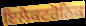
ਇਲੈਕਟਰੋਨਿਕ